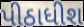
પીઠાધીશ